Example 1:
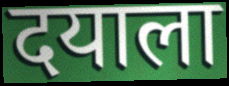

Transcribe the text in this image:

दयाला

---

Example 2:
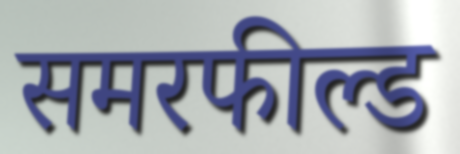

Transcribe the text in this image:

समरफील्ड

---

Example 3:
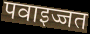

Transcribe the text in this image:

पवाइज्जत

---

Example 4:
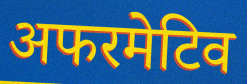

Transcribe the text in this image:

अफरमेटिव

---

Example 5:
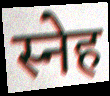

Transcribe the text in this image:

स्नेह